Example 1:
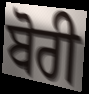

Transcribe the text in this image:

ਬੋਰੀ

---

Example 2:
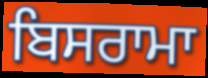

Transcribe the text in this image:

ਬਿਸਰਾਮਾ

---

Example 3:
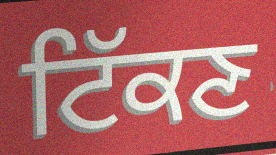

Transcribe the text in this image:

ਟਿੱਕਣ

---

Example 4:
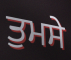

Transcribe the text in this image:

ਤੁਮਸੇ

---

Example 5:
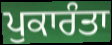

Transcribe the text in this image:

ਪੁਕਾਰੰਤਾ